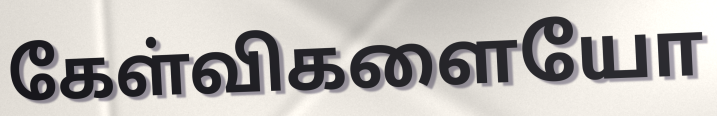
கேள்விகளையோ